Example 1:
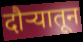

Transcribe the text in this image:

दौऱ्यातून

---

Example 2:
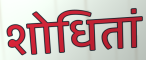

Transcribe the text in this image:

शोधितां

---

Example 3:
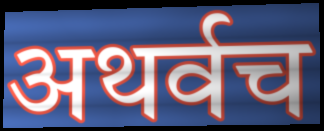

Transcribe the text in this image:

अथर्वच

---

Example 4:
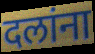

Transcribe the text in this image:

दलांना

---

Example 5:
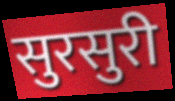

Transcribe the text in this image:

सुरसुरी